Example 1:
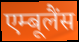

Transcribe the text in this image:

एम्बूलैंस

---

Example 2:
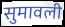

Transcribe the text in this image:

सुमावली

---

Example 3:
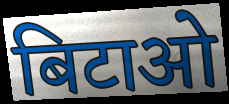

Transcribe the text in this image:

बिटाओ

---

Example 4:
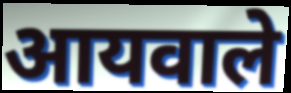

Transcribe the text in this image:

आयवाले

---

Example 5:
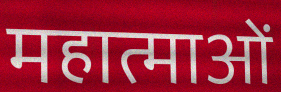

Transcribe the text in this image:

महात्‍माओं